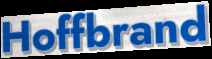
Hoffbrand